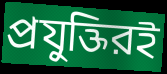
প্রযুক্তিরই